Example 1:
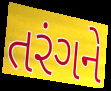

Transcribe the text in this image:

તરંગને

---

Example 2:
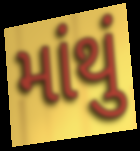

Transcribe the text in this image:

માંથું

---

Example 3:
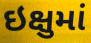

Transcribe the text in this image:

ઇક્ષુમાં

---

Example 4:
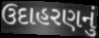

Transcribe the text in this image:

ઉદાહરણનું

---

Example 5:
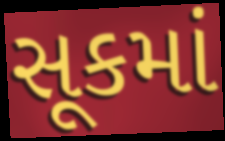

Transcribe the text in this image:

સૂકમાં